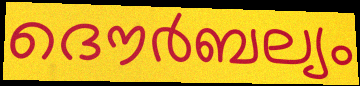
ദൌർബല്യം